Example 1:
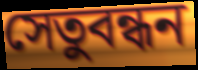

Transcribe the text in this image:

সেতুবন্ধন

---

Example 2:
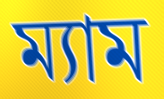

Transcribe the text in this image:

ম্যাম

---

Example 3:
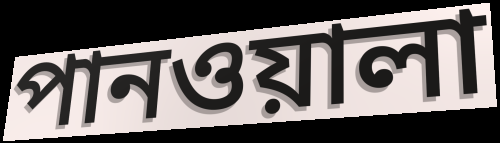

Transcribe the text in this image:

পানওয়ালা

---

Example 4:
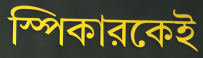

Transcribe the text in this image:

স্পিকারকেই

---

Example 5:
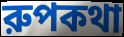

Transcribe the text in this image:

রুপকথা